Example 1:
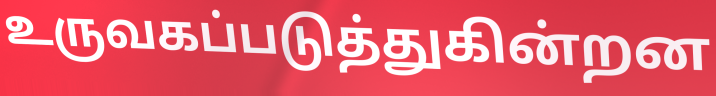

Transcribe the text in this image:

உருவகப்படுத்துகின்றன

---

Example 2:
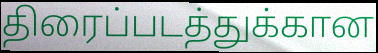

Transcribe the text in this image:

திரைப்படத்துக்கான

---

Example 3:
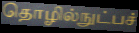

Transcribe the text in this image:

தொழில்நுட்பச்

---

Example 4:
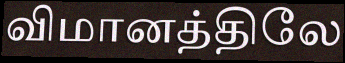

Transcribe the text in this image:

விமானத்திலே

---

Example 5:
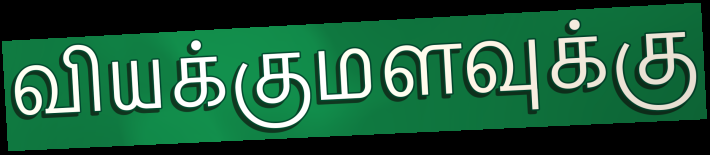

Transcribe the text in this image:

வியக்குமளவுக்கு